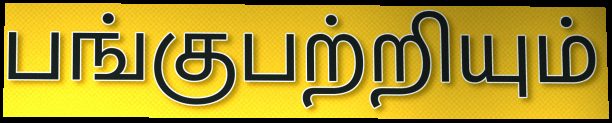
பங்குபற்றியும்